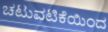
ಚಟುವಟಿಕೆಯಿಂದ